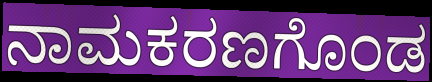
ನಾಮಕರಣಗೊಂಡ